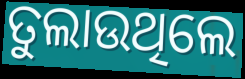
ତୁଲାଉଥିଲେ